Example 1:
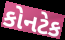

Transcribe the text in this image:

કોનટેક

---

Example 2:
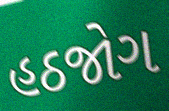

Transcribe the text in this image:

હઠજોગ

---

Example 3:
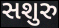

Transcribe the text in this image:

સશુરુ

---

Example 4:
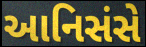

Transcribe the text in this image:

આનિસંસે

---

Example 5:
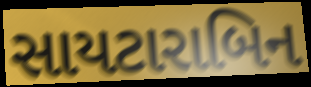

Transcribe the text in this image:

સાયટારાબિન